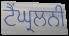
ਟੈਂਘ੍ਰਲਨੀ